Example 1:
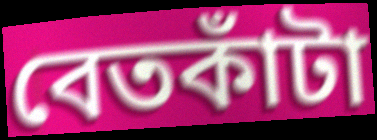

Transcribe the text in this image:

বেতকাঁটা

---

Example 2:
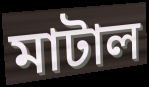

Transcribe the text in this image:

মাটাল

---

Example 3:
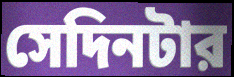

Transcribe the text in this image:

সেদিনটার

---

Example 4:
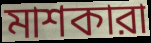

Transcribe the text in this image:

মাশকারা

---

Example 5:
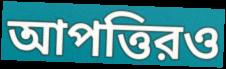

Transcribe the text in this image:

আপত্তিরও